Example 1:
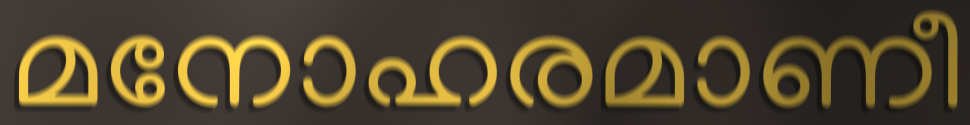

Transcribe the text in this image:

മനോഹരമാണീ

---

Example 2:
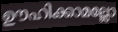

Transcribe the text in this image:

ഊഹിക്കാമല്ലോ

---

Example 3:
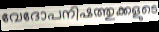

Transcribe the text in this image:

വേദോപനിഷത്തുക്കളുടെ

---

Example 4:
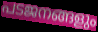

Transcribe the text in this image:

പടജനങ്ങളും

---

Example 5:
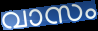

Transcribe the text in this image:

വാസം